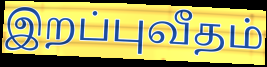
இறப்புவீதம்